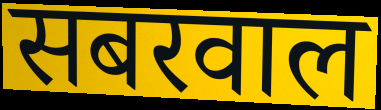
सबरवाल